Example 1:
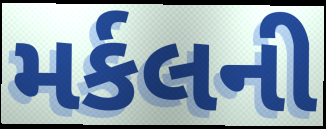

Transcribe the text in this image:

મર્કલની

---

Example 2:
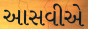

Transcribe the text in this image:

આસવીએ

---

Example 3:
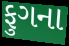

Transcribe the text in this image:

ફુગના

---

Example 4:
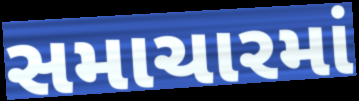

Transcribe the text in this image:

સમાચારમાં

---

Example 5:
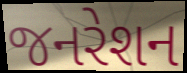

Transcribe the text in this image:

જનરેશન